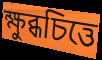
ক্ষুব্ধচিত্তে